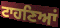
ਟਾਹਣਿਆਂ